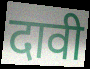
दावी